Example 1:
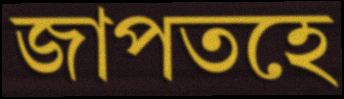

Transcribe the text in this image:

জাপতহে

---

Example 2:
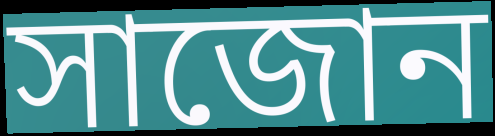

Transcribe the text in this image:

সাজোন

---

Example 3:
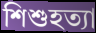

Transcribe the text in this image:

শিশুহত্যা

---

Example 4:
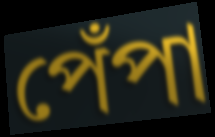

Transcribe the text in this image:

পেঁপা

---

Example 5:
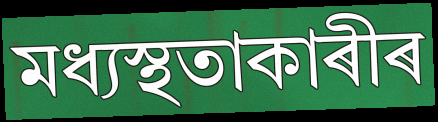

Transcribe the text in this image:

মধ্যস্থতাকাৰীৰ